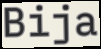
Bija